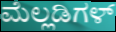
ಮೆಲ್ಲಡಿಗಳ್